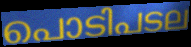
പൊടിപടല